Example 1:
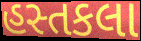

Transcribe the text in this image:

હસ્તકલા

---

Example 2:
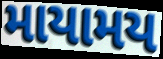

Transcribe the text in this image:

માયામય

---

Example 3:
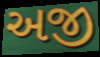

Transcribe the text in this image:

અજી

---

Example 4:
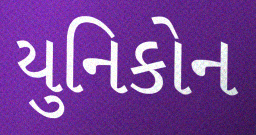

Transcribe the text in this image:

યુનિકોન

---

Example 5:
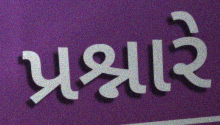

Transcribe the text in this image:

પ્રશ્નારે